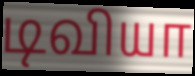
டிவியா